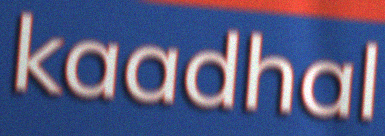
kaadhal